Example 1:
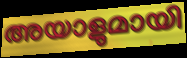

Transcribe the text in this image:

അയാളുമായി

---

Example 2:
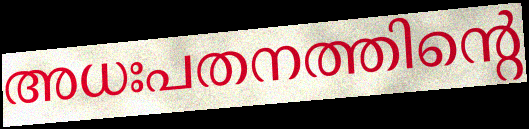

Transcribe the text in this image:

അധഃപതനത്തിന്റെ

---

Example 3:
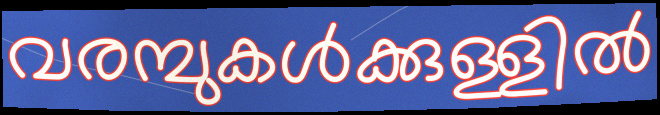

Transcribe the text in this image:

വരമ്പുകൾക്കുള്ളിൽ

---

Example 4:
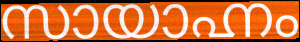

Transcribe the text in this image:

സായാഹ്നം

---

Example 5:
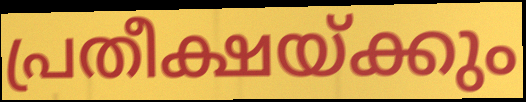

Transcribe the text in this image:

പ്രതീക്ഷയ്ക്കും